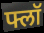
फ्लॉ